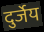
दुर्जेय